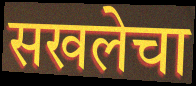
सखलेचा